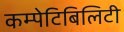
कम्पेटिबिलिटी